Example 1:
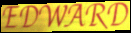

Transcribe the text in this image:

EDWARD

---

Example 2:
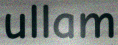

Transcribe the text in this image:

ullam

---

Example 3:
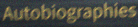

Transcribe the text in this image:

Autobiographies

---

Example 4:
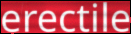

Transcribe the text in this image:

erectile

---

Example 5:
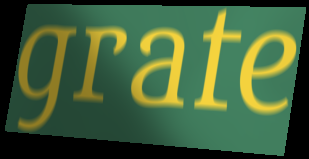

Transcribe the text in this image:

grate